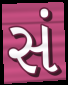
સં